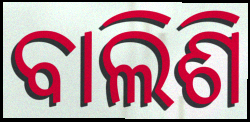
ବାଲିଶି